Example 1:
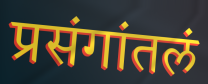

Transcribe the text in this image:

प्रसंगांतलं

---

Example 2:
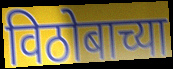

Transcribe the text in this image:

विठोबाच्या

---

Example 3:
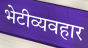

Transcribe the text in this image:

भेटीव्यवहार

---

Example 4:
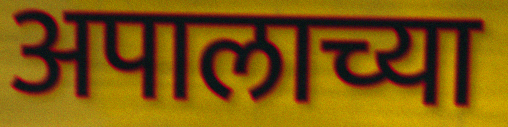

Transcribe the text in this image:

अपालाच्या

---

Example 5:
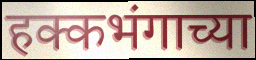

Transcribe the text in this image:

हक्कभंगाच्या